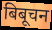
बिबूचन